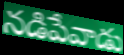
నడిపేవాడు